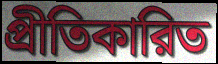
প্রীতিকারিত